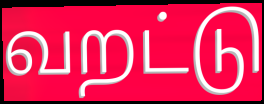
வறட்டு